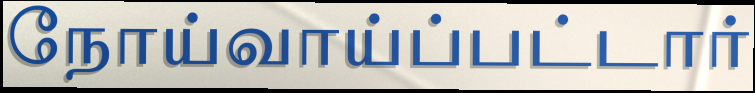
நோய்வாய்ப்பட்டார்